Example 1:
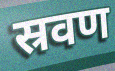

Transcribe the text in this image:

स्रवण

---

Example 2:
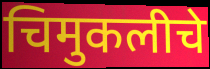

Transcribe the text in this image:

चिमुकलीचे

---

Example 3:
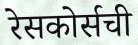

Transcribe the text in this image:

रेसकोर्सची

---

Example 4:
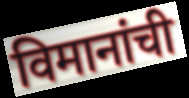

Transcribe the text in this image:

विमानांची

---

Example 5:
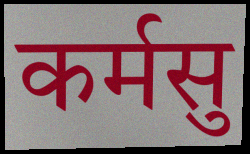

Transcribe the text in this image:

कर्मसु